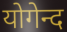
योगेन्द